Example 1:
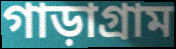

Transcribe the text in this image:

গাড়াগ্রাম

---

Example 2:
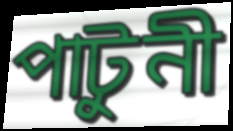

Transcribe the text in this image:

পাটুনী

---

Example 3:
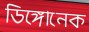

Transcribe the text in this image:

ডিঙ্গোনেক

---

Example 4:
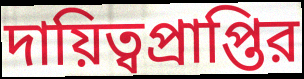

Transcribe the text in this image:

দায়িত্বপ্রাপ্তির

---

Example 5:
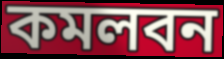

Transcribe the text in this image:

কমলবন